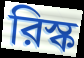
রিস্ক